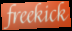
freekick